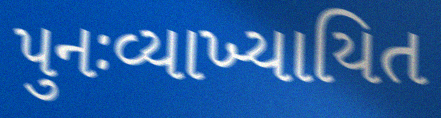
પુનઃવ્યાખ્યાયિત